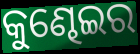
କୁଣ୍ଢେଇର